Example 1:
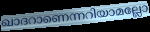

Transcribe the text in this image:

ഖാദറാണെന്നറിയാമല്ലോ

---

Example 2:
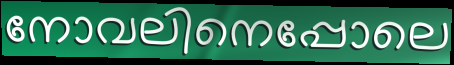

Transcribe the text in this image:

നോവലിനെപ്പോലെ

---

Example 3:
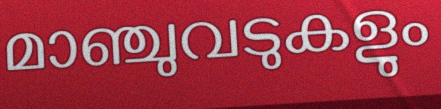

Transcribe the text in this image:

മാഞ്ചുവടുകളും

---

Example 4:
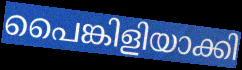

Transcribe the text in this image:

പൈങ്കിളിയാക്കി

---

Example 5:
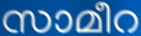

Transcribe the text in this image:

സാമീറ